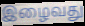
இழைவது